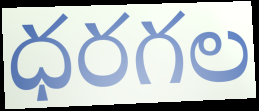
ధరగల